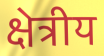
क्षेत्रीय